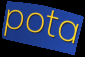
pota